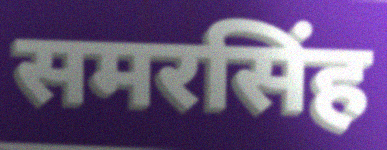
समरसिंह